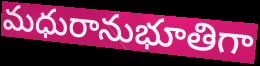
మధురానుభూతిగా